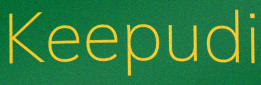
Keepudi